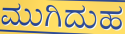
ಮುಗಿದುಹ